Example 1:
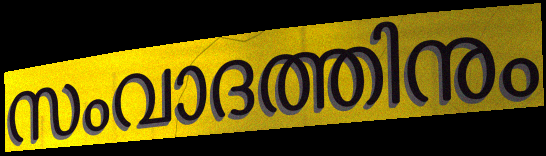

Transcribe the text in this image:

സംവാദത്തിനും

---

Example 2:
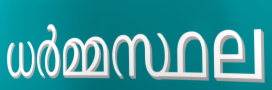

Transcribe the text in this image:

ധർമ്മസ്ഥല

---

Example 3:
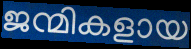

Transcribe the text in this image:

ജന്മികളായ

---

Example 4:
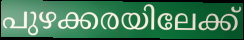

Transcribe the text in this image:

പുഴക്കരയിലേക്ക്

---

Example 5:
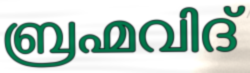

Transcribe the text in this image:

ബ്രഹ്മവിദ്